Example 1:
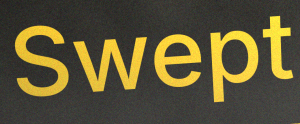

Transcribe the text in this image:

Swept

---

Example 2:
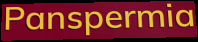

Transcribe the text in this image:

Panspermia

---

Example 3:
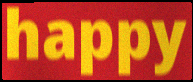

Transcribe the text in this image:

happy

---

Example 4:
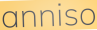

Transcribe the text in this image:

anniso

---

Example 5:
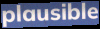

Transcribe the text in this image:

plausible